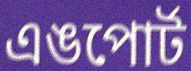
এঙপোর্ট